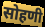
सोहणी